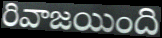
రివాజయింది